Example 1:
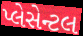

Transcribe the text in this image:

પ્લેસેન્ટલ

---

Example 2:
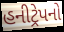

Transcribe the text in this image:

હનીટ્રેપનો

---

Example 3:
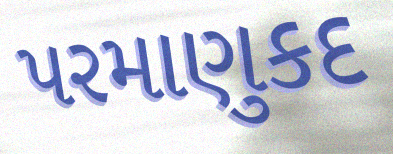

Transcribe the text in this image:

પરમાણુકદ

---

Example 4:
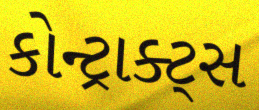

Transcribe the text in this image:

કોન્ટ્રાક્ટ્સ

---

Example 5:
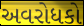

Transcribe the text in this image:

અવરોધકો